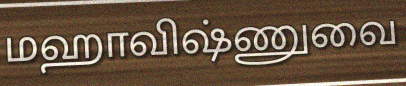
மஹாவிஷ்ணுவை